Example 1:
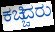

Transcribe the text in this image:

ಕಚ್ಚಿದರು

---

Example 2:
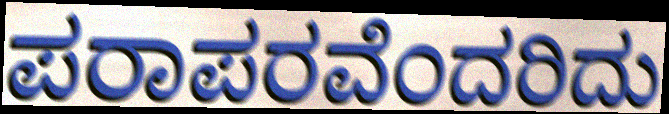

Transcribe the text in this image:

ಪರಾಪರವೆಂದರಿದು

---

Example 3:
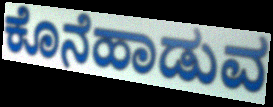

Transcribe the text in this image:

ಕೊನೆಹಾಡುವ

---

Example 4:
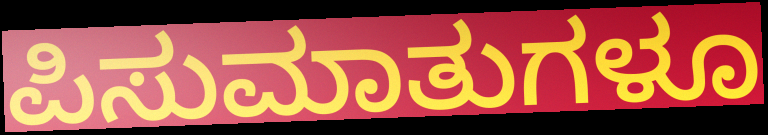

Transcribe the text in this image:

ಪಿಸುಮಾತುಗಳೂ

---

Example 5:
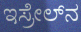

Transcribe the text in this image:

ಇಸ್ರೇಲ್‍ನ